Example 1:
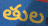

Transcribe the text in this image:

తుల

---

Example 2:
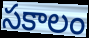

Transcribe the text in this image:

సకాలం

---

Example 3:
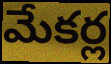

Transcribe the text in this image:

మేకర్ల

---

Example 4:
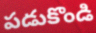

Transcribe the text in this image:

పడుకొండి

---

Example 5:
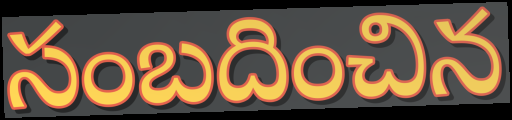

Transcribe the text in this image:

సంబదించిన